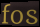
fos